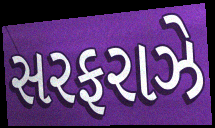
સરફરાઝે